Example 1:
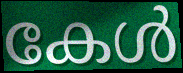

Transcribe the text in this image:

കേൾ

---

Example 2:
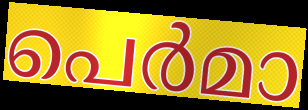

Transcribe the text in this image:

പെർമാ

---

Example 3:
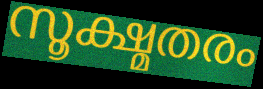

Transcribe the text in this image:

സൂക്ഷ്മതരം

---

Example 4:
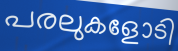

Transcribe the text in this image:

പരലുകളോടി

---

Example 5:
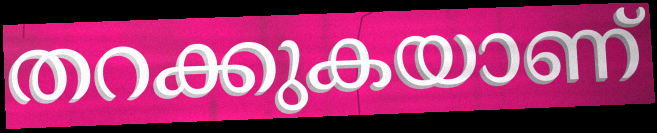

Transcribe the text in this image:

തറക്കുകയാണ്